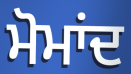
ਮੋਮਾਂਦ